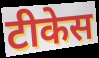
टीकेस